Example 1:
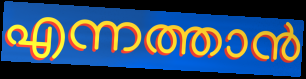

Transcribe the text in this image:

എന്നത്താൻ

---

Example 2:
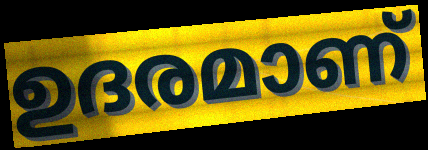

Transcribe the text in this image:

ഉദരമാണ്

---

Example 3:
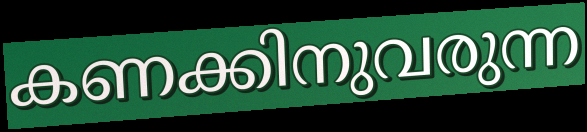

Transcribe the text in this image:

കണക്കിനുവരുന്ന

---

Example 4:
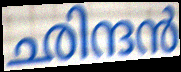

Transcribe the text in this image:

ഛിന്ദൻ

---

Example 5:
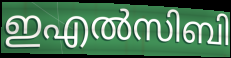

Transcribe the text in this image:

ഇഎൽസിബി